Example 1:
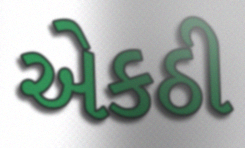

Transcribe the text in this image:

એકઠી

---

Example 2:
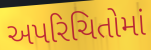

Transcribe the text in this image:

અપરિચિતોમાં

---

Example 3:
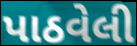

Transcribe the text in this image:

પાઠવેલી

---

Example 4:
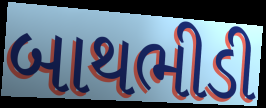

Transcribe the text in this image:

બાથભીડી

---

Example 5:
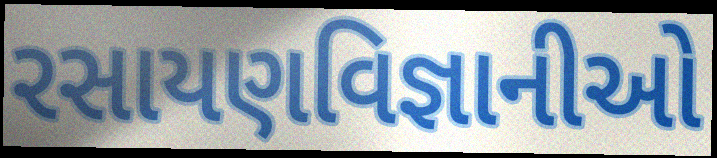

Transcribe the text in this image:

રસાયણવિજ્ઞાનીઓ